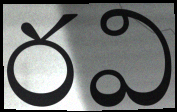
రవి